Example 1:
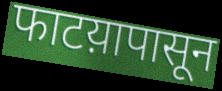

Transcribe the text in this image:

फाटय़ापासून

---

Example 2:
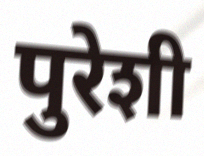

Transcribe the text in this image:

पुरेशी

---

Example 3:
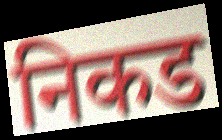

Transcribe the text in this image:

निकड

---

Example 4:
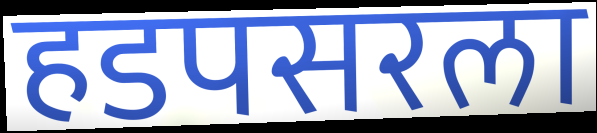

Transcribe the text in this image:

हडपसरला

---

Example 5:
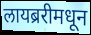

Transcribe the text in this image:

लायब्ररीमधून